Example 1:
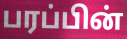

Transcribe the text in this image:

பரப்பின்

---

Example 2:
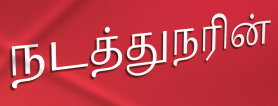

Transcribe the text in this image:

நடத்துநரின்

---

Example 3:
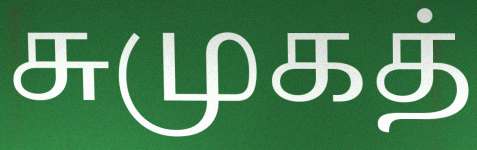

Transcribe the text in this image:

சுமுகத்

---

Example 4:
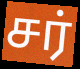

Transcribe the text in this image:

சர்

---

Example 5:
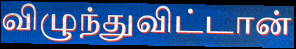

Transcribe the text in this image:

விழுந்துவிட்டான்